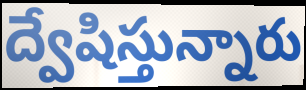
ద్వేషిస్తున్నారు